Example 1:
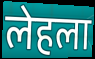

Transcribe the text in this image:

लेहला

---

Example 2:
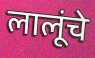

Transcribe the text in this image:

लालूंचे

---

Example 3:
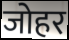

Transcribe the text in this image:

जोहर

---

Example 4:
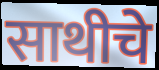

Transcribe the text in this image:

साथीचे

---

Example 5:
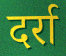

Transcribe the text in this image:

दर्रा